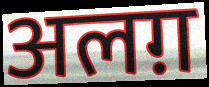
अलग़